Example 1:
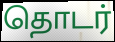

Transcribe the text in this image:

தொடர்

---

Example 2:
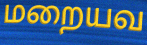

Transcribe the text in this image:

மறையவ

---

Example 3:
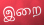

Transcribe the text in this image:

இறை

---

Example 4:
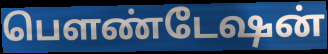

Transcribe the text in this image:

பௌண்டேஷன்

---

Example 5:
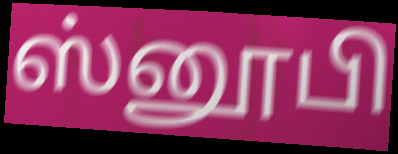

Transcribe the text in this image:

ஸ்னூபி